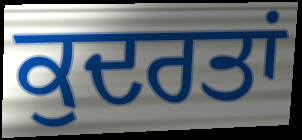
ਕੁਦਰਤਾਂ